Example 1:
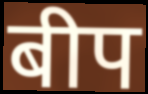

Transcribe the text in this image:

बीप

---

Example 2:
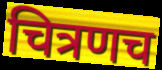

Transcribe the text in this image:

चित्रणच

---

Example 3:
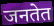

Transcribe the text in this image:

जनतेत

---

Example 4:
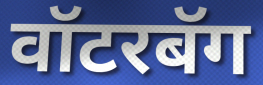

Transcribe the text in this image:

वॉटरबॅग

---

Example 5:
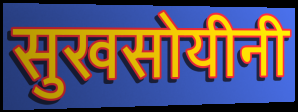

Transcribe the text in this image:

सुखसोयीनी